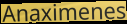
Anaximenes